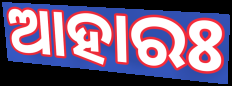
ଆହାରଃ